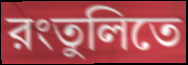
রংতুলিতে